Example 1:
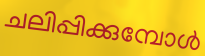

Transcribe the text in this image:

ചലിപ്പിക്കുമ്പോൾ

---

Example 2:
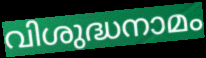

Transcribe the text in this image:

വിശുദ്ധനാമം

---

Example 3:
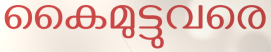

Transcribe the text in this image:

കൈമുട്ടുവരെ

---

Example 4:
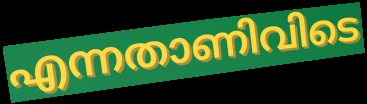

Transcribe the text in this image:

എന്നതാണിവിടെ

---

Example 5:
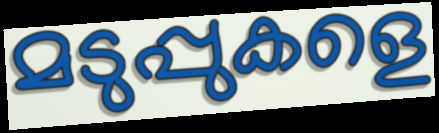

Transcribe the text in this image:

മടുപ്പുകളെ